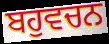
ਬਹੁਵਚਨ